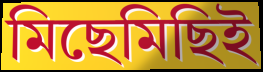
মিছেমিছিই